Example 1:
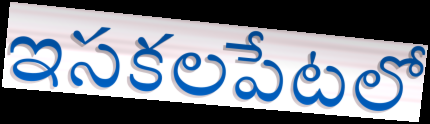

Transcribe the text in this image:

ఇసకలపేటలో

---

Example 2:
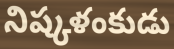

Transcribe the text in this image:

నిష్కళంకుడు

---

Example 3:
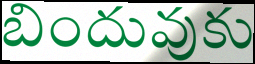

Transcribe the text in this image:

బిందువుకు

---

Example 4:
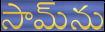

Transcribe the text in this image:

సామ్‌ను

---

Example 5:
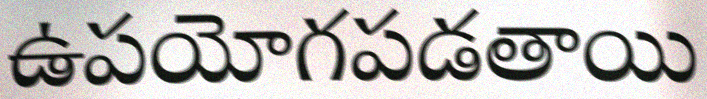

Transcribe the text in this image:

ఉపయోగపడతాయి